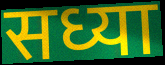
सध्या